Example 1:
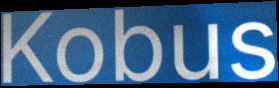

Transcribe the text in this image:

Kobus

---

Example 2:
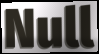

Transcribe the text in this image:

Null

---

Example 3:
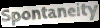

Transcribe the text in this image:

Spontaneity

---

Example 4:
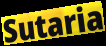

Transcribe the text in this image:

Sutaria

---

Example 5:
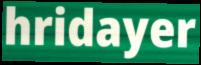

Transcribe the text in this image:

hridayer